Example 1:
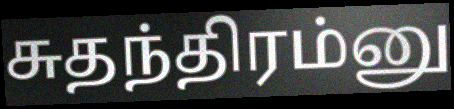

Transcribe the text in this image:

சுதந்திரம்னு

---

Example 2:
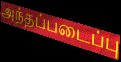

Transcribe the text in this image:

அந்தப்படைப்பு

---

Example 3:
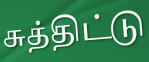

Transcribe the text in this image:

சுத்திட்டு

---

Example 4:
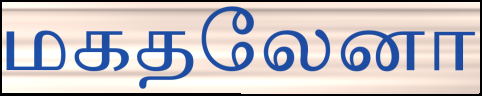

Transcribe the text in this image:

மகதலேனா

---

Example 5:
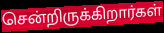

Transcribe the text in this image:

சென்றிருக்கிறார்கள்